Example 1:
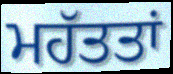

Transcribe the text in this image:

ਮਹੱਤਤਾਂ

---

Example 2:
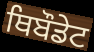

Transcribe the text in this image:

ਥਿਬੌਡੇਟ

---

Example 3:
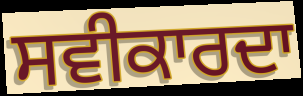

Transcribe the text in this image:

ਸਵੀਕਾਰਦਾ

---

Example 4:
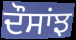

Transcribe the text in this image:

ਦੌਸਾਂਝ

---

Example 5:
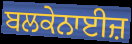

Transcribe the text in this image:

ਬਲਕੇਨਾਈਜ਼